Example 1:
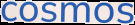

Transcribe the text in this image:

cosmos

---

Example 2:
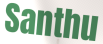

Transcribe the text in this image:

Santhu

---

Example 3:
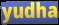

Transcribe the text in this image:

yudha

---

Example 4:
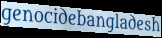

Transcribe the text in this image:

genocidebangladesh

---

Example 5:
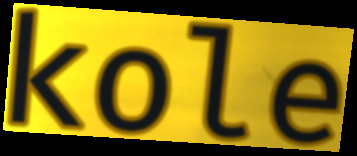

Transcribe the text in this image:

kole